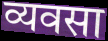
व्यवसा